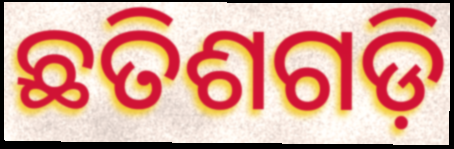
ଛତିଶଗଡ଼ି